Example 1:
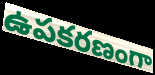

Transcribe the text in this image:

ఉపకరణంగా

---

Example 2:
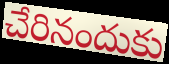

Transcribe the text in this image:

చేరినందుకు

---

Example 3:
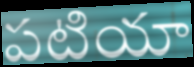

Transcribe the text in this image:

పటియా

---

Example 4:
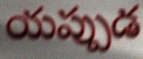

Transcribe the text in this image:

యప్పుడ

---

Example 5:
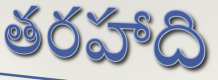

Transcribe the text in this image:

తరహాది